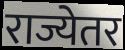
राज्येतर